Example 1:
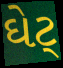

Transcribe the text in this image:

ઘેટ્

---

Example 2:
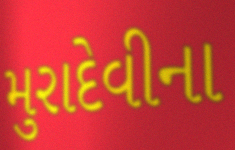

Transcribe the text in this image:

મુરાદેવીના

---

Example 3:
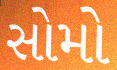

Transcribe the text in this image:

સોમો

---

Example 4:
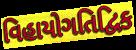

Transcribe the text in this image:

વિહાયોગતિદ્વિક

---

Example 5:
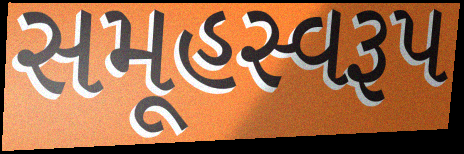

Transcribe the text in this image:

સમૂહસ્વરૂપ